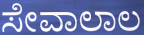
ಸೇವಾಲಾಲ